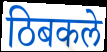
ठिबकले